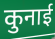
कुनाई